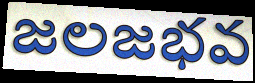
జలజభవ